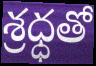
శ్రధ్ధతో